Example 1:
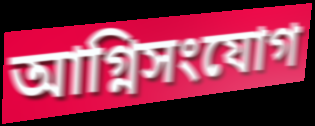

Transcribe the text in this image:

আগ্নিসংযোগ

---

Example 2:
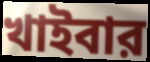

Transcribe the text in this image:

খাইবার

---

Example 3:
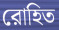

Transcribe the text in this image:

রোহিত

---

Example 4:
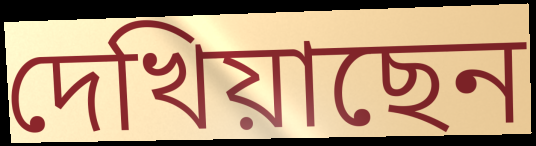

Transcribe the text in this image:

দেখিয়াছেন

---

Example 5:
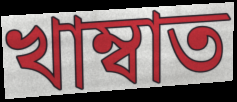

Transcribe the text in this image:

খাম্বাত